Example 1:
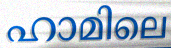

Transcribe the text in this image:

ഹാമിലെ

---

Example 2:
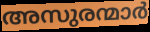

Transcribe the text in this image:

അസുരന്മാർ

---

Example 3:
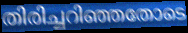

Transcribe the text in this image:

തിരിച്ചറിഞ്ഞതോടെ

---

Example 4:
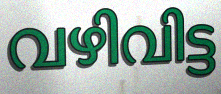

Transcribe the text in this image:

വഴിവിട്ട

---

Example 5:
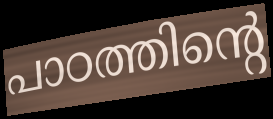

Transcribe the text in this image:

പാഠത്തിന്റെ